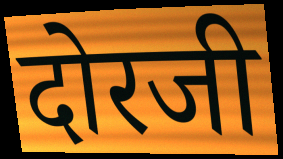
दोरजी